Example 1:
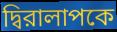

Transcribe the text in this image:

দ্বিরালাপকে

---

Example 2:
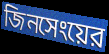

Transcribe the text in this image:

জিনসেংয়ের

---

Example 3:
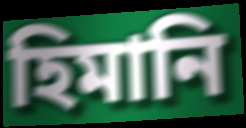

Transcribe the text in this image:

হিমানি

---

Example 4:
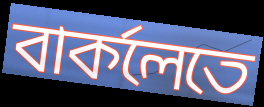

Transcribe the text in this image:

বার্কলেতে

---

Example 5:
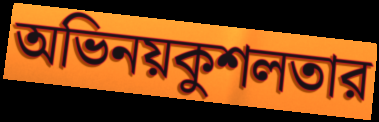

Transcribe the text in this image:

অভিনয়কুশলতার